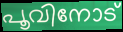
പൂവിനോട്